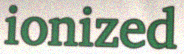
ionized